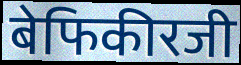
बेफिकीरजी